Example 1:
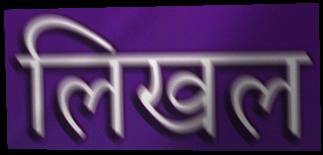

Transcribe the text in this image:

लिखल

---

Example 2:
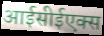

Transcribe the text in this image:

आईसीईएक्स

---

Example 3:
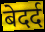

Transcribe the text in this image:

बेदर्द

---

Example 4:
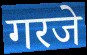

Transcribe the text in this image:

गरजे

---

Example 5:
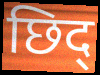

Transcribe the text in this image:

छिद्